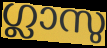
ഗ്ലാസു